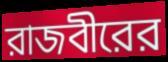
রাজবীরের